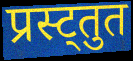
प्रस्ट्तुत